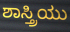
ಶಾಸ್ತ್ರಿಯು